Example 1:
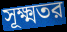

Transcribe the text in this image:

সূক্ষ্মতর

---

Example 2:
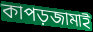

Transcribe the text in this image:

কাপড়জামাই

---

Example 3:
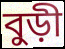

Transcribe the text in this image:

বুড়ী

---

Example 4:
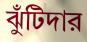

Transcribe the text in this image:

ঝুঁটিদার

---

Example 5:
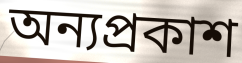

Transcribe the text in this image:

অন্যপ্রকাশ